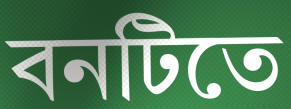
বনটিতে